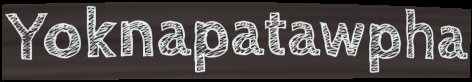
Yoknapatawpha